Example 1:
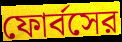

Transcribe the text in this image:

ফোর্বসের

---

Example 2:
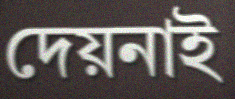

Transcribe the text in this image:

দেয়নাই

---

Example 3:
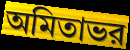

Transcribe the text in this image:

অমিতাভর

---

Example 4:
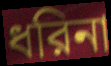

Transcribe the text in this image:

ধরিনা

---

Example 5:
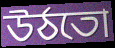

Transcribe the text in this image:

উঠতো